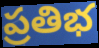
ప్రతిభ